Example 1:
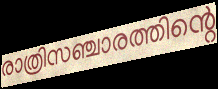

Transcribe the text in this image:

രാത്രിസഞ്ചാരത്തിന്റെ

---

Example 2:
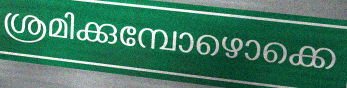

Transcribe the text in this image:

ശ്രമിക്കുമ്പോഴൊക്കെ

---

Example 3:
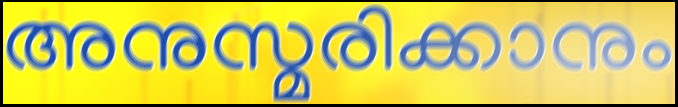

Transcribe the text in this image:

അനുസ്മരിക്കാനും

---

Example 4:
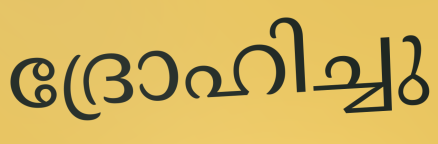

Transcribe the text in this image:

ദ്രോഹിച്ചു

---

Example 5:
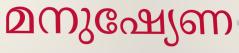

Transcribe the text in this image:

മനുഷ്യേണ